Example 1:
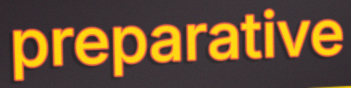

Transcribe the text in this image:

preparative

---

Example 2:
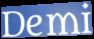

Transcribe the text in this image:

Demi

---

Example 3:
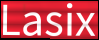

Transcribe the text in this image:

Lasix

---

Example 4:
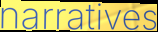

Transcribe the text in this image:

narratives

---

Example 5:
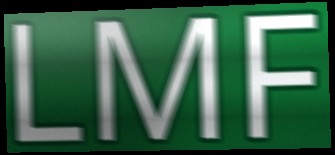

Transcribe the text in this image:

LMF